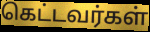
கெட்டவர்கள்